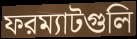
ফরম্যাটগুলি